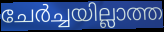
ചേർച്ചയില്ലാത്ത